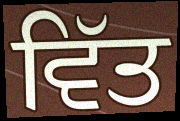
ਵਿੱਤ